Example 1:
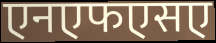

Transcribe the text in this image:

एनएफएसए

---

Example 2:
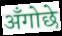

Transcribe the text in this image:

अँगोछे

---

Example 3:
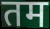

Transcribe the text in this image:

तम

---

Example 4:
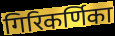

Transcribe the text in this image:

गिरिकर्णिका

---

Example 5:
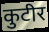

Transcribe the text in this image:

कुटीर